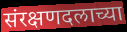
संरक्षणदलाच्या